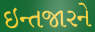
ઇન્તજારને